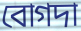
বোগদা